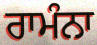
ਰਾਮੰਨਾ